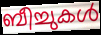
ബീച്ചുകൾ